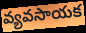
వ్యవసాయక